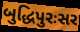
બુદ્ધિપુરઃસર